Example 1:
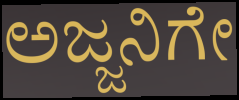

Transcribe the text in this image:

ಅಜ್ಜನಿಗೇ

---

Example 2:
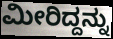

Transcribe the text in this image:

ಮೀರಿದ್ದನ್ನು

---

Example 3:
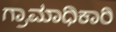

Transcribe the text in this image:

ಗ್ರಾಮಾಧಿಕಾರಿ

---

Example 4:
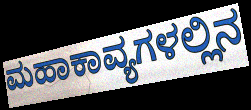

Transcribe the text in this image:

ಮಹಾಕಾವ್ಯಗಳಲ್ಲಿನ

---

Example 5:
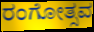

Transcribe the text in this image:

ರಂಗೋತ್ಸವ